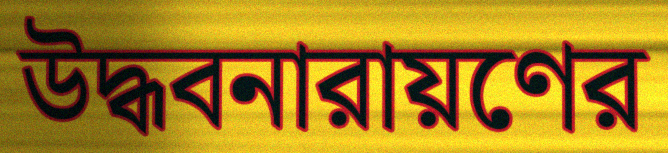
উদ্ধবনারায়ণের